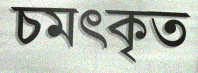
চমৎকৃত